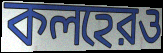
কলহেরও